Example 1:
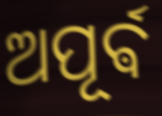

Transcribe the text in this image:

ଅପୂର୍ଵ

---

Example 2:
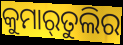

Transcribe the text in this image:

କୁମାର୍‌ତୁଲିର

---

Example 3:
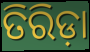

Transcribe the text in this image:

ତିରିଡ଼ା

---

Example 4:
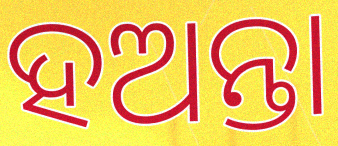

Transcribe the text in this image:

ହଅନ୍ତା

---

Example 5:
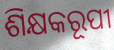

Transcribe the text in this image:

ଶିକ୍ଷକରୂପୀ